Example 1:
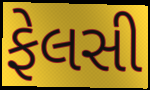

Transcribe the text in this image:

ફેલસી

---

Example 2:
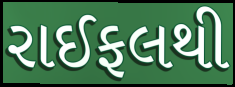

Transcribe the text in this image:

રાઈફલથી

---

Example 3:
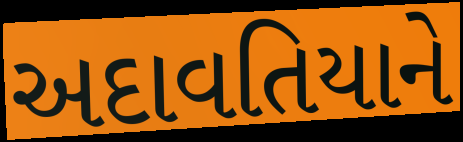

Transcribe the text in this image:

અદાવતિયાને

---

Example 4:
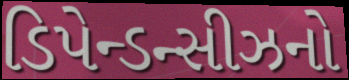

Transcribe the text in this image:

ડિપેન્ડન્સીઝનો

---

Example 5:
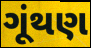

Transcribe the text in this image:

ગૂંથણ